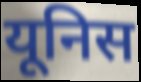
यूनिस